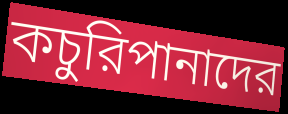
কচুরিপানাদের